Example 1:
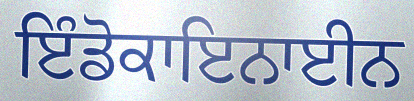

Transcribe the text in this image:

ਇੰਡੋਕਾਇਨਾਈਨ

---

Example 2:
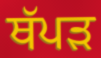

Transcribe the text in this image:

ਥੱਪੜ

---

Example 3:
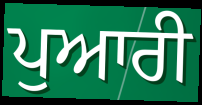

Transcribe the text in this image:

ਪੁਆਰੀ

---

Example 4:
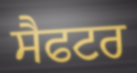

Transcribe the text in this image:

ਸੈਫਟਰ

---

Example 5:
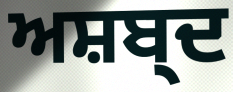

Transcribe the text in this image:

ਅਸ਼ਬ੍ਦ